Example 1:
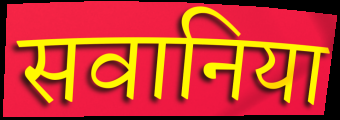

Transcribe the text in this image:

सवानिया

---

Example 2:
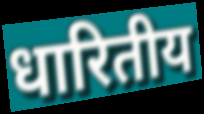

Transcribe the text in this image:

धारितीय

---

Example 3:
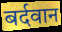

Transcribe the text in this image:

बर्दवान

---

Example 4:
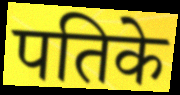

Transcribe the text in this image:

पतिके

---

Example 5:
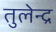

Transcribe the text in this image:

तुलेन्द्र